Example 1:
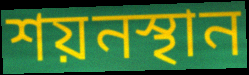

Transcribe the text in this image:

শয়নস্থান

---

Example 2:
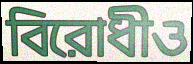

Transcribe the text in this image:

বিরোধীও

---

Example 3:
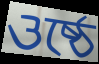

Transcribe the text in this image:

ওষ্ঠে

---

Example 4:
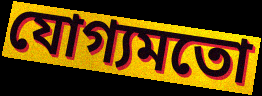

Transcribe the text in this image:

যোগ্যমতো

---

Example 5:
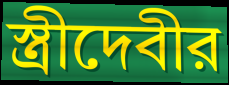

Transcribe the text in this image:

স্ত্রীদেবীর